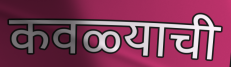
कवळ्याची